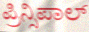
ಪ್ರಿನ್ಸಿಪಾಲ್